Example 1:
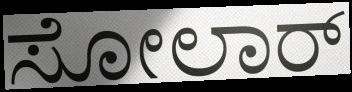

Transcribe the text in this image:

ಸೋಲಾರ್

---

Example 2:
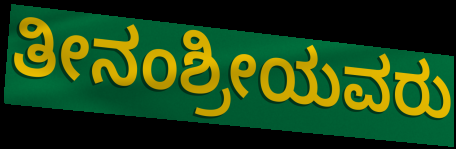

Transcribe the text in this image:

ತೀನಂಶ್ರೀಯವರು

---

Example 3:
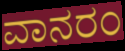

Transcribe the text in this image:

ವಾನರಂ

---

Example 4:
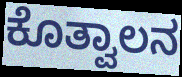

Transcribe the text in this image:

ಕೊತ್ವಾಲನ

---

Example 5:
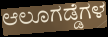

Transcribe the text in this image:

ಆಲೂಗಡ್ಡೆಗಳ